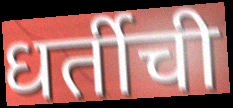
धर्तीची